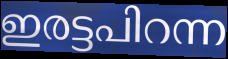
ഇരട്ടപിറന്ന